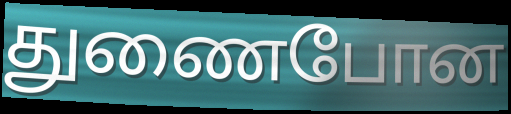
துணைபோன